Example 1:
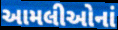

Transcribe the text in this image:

આમલીઓનાં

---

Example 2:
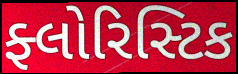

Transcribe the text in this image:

ફ્લોરિસ્ટિક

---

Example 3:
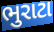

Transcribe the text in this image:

ભુરાટા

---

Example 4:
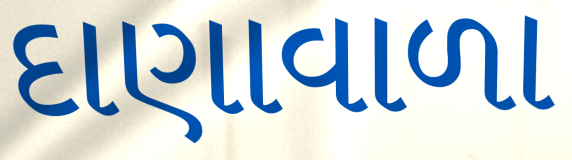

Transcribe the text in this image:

દાણાવાળા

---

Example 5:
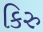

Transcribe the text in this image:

કિરુ